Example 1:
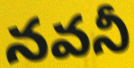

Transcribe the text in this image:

నవనీ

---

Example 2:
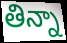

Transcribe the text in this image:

తిన్నా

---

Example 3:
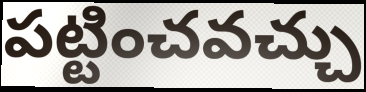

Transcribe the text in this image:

పట్టించవచ్చు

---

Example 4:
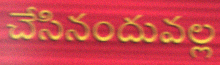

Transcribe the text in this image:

చేసినందువల్ల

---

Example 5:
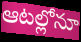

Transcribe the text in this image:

ఆటల్లోనూ